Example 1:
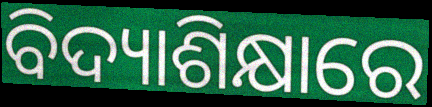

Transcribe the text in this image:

ବିଦ୍ୟାଶିକ୍ଷାରେ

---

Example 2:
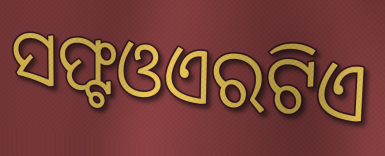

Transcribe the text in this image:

ସଫ୍ଟଓଏରଟିଏ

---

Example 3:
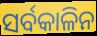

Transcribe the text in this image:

ସର୍ବକାଳିନ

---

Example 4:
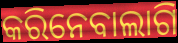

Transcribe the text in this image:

କରିନେବାଲାଗି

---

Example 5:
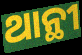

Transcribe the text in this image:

ଥାନ୍ଥୀ